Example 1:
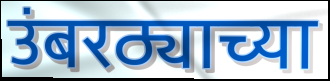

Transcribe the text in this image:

उंबरठ्याच्या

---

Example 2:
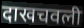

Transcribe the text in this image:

दाखचवली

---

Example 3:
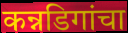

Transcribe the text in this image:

कन्नडिगांचा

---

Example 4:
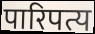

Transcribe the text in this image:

पारिपत्य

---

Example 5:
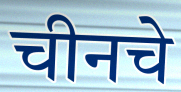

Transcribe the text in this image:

चीनचे